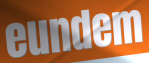
eundem